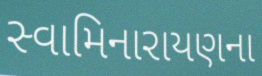
સ્વામિનારાયણના